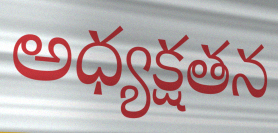
అధ్యక్షతన